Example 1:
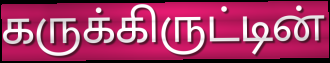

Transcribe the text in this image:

கருக்கிருட்டின்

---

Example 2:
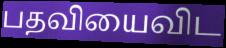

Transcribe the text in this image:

பதவியைவிட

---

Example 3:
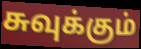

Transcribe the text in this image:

சுவுக்கும்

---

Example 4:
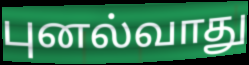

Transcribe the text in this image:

புனல்வாது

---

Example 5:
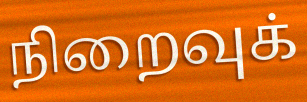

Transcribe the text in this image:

நிறைவுக்